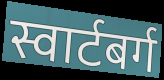
स्वार्टबर्ग